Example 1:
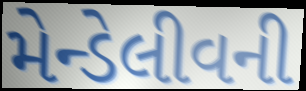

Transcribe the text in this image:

મેન્ડેલીવની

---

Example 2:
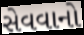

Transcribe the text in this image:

સેવવાનો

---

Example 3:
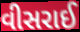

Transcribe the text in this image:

વીસરાઈ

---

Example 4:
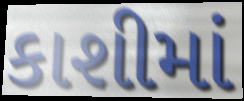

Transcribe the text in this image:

કાશીમાં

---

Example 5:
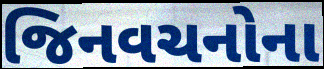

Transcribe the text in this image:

જિનવચનોના